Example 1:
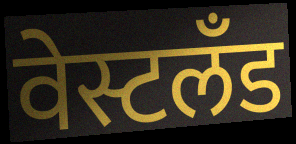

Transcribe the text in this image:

वेस्टलँड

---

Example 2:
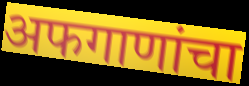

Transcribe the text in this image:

अफगाणांचा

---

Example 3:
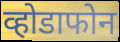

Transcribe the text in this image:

व्होडाफोन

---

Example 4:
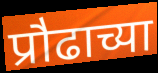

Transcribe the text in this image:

प्रौढाच्या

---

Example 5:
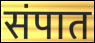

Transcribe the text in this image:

संपात